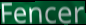
Fencer